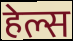
हेल्स